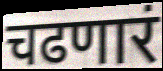
चढणारं